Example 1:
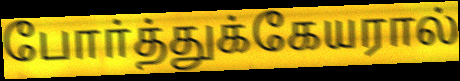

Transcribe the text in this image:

போர்த்துக்கேயரால்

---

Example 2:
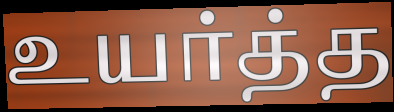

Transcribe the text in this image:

உயர்த்த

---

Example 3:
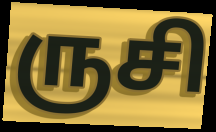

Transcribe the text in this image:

ருசி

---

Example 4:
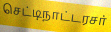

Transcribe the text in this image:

செட்டிநாட்டரசர்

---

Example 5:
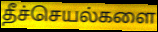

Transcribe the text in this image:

தீச்செயல்களை